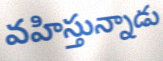
వహిస్తున్నాడు